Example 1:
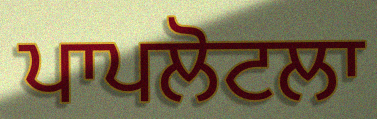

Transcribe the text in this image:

ਪਾਪਲੋਟਲਾ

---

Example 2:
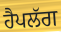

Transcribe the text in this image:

ਹੈਪਲੱਗ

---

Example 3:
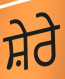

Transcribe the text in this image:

ਸ਼ੇਰੇ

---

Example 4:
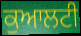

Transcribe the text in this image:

ਕੁਆਲਟੀ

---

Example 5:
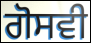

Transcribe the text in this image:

ਗੋਸਵੀ